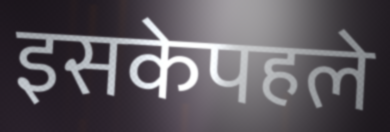
इसकेपहले